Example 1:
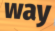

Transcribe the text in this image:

way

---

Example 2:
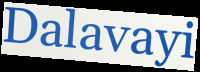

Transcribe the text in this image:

Dalavayi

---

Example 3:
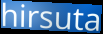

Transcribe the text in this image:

hirsuta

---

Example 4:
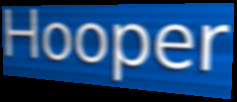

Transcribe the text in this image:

Hooper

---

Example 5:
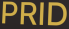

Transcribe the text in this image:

PRID